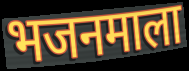
भजनमाला